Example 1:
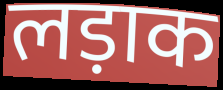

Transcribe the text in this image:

लड़ाक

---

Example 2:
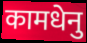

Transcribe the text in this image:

कामधेनु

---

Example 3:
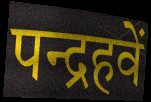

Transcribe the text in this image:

पन्द्रहवें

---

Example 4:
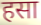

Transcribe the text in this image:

हसा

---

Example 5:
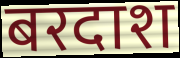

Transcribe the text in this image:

बरदाश